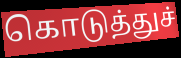
கொடுத்துச்